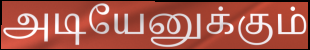
அடியேனுக்கும்